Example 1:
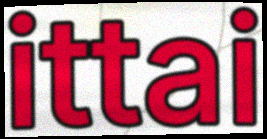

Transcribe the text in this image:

ittai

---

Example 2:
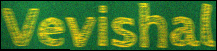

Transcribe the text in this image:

Vevishal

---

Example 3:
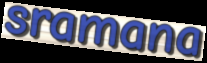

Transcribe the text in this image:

sramana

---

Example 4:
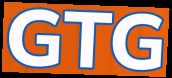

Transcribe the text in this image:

GTG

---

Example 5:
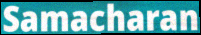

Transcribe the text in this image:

Samacharan